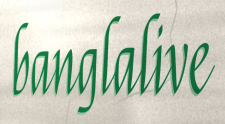
banglalive